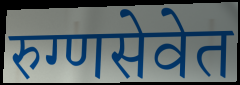
रुग्णसेवेत